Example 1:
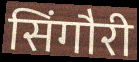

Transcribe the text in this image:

सिंगौरी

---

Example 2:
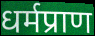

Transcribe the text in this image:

धर्मप्राण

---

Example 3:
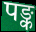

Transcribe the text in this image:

पङ्क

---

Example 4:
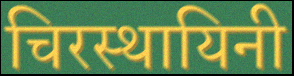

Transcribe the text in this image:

चिरस्थायिनी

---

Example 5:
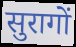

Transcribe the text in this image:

सुरागों